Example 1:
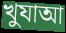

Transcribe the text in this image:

খুযাআ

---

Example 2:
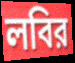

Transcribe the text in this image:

লবির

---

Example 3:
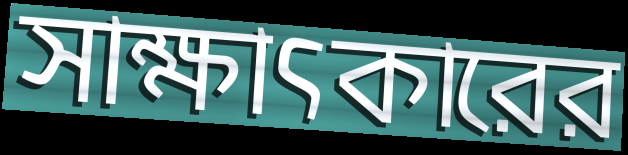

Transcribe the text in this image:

সাক্ষাৎকারের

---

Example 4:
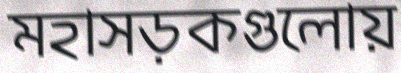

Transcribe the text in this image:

মহাসড়কগুলোয়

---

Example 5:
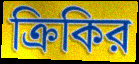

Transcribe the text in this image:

ক্রিকির